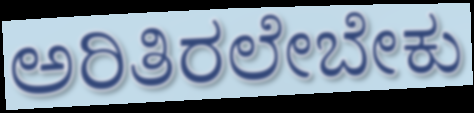
ಅರಿತಿರಲೇಬೇಕು